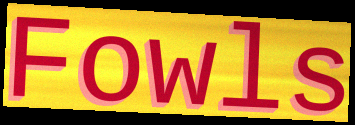
Fowls